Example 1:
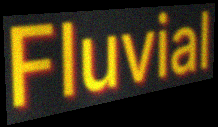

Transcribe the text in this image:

Fluvial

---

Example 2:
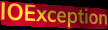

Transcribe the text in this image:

IOException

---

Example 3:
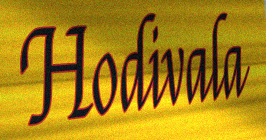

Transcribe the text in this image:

Hodivala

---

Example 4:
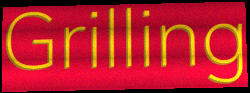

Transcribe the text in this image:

Grilling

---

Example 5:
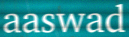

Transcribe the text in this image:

aaswad